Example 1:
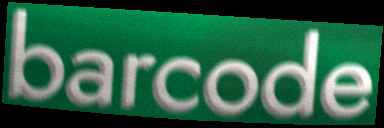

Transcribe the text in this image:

barcode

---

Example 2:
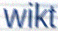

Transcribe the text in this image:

wikt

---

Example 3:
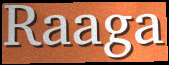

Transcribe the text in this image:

Raaga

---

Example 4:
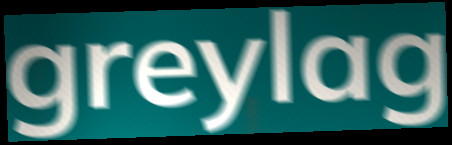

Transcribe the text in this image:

greylag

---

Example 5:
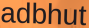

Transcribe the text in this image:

adbhut